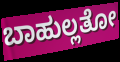
ಬಾಹುಲ್ಲತೋ